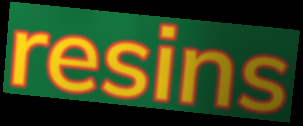
resins